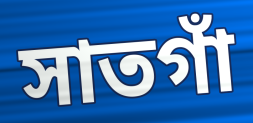
সাতগাঁ